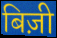
बिज़ी